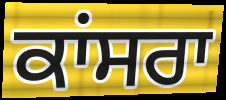
ਕਾਂਸਰਾ